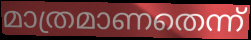
മാത്രമാണതെന്ന്